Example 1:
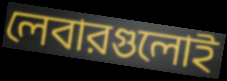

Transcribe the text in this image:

লেবারগুলোই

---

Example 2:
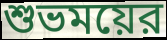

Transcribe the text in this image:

শুভময়ের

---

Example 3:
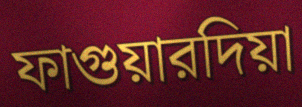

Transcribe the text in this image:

ফাগুয়ারদিয়া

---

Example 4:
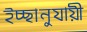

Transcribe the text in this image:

ইচ্ছানুযায়ী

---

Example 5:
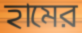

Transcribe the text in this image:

হামের